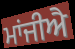
ਮਾਂਜੀਐ